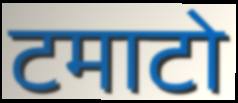
टमाटो